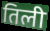
तिली